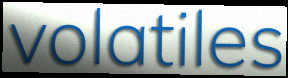
volatiles